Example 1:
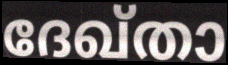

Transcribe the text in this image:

ദേഖ്താ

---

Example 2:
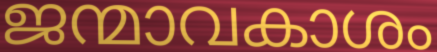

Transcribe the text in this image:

ജന്മാവകാശം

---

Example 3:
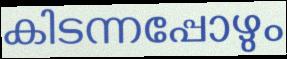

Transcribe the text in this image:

കിടന്നപ്പോഴും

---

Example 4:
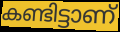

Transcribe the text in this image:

കണ്ടിട്ടാണ്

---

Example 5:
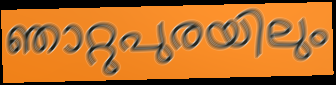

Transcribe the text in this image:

ഞാറ്റുപുരയിലും